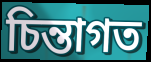
চিন্তাগত